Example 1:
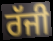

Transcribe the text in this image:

ਰੱਜੀ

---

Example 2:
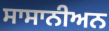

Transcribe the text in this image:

ਸਾਸਾਨੀਅਨ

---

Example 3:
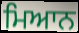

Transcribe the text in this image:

ਮਿਆਨ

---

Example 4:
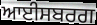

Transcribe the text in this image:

ਆਈਸਬਰਗ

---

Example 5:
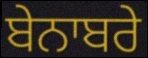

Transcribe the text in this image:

ਬੇਨਾਬਰੇ